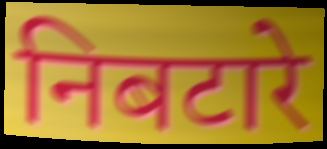
निबटारे